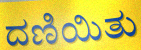
ದಣಿಯಿತು